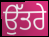
ਉੱਤਰੇ